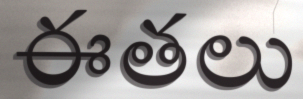
ఈతలు